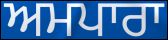
ਅਮਪਾਰਾ